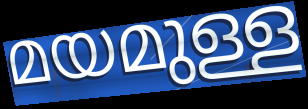
മയമുള്ള